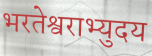
भरतेश्वराभ्युदय